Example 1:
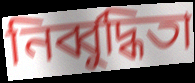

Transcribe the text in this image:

নির্ব্বুদ্ধিতা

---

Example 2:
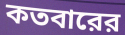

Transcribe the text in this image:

কতবারের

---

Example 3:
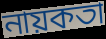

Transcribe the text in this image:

নায়কতা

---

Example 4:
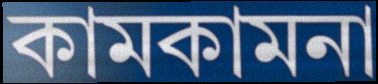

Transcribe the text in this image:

কামকামনা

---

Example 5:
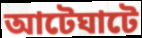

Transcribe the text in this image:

আটেঘাটে